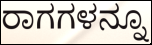
ರಾಗಗಳನ್ನೂ